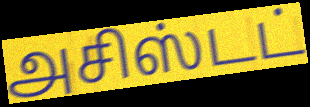
அசிஸ்டட்